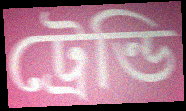
ট্রেন্ডি